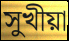
সুখীয়া